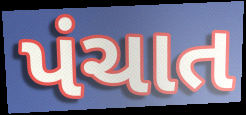
પંચાત